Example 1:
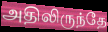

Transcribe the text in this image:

அதிலிருந்தே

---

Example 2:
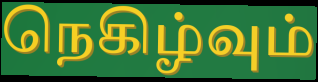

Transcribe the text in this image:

நெகிழ்வும்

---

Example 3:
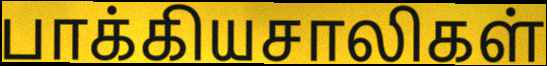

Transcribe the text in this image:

பாக்கியசாலிகள்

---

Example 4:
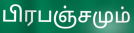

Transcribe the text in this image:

பிரபஞ்சமும்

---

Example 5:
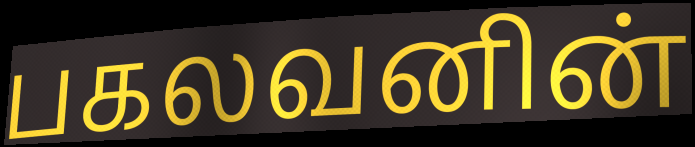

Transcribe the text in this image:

பகலவனின்